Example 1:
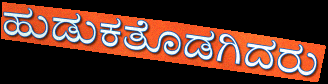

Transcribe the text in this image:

ಹುಡುಕತೊಡಗಿದರು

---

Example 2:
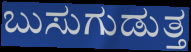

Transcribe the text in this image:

ಬುಸುಗುಡುತ್ತ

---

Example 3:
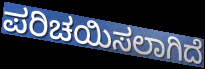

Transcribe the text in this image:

ಪರಿಚಯಿಸಲಾಗಿದೆ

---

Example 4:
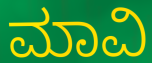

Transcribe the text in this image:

ಮಾವಿ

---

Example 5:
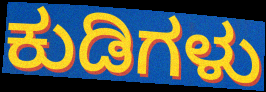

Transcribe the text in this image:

ಕುಡಿಗಳು